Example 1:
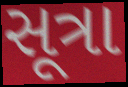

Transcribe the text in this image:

સૂત્રા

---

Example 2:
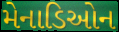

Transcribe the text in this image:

મેનાડિઓન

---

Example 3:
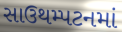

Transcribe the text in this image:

સાઉથમ્પટનમાં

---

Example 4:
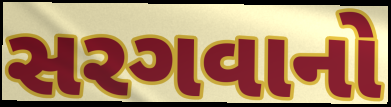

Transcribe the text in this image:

સરગવાનો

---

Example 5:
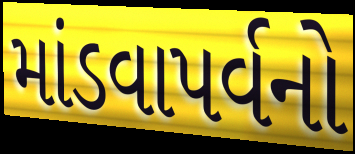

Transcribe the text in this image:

માંડવાપર્વનો